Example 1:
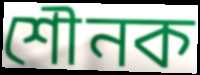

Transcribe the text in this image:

শৌনক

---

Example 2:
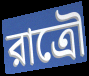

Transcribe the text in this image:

রাত্রৌ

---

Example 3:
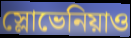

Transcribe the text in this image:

স্লোভেনিয়াও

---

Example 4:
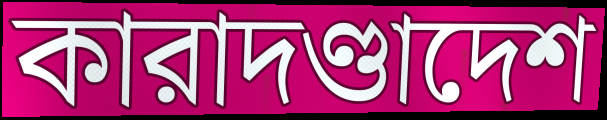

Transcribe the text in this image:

কারাদণ্ডাদেশ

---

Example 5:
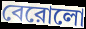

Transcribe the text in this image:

বেরোলো